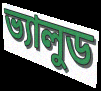
ভ্যালুড